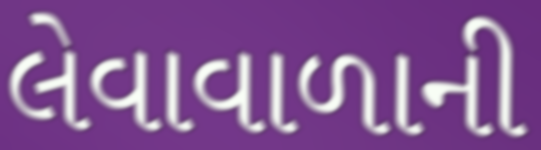
લેવાવાળાની